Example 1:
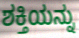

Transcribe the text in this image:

ಶಕ್ತಿಯನ್ನು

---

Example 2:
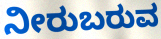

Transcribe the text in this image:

ನೀರುಬರುವ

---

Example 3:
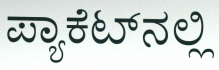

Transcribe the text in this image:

ಪ್ಯಾಕೆಟ್‍ನಲ್ಲಿ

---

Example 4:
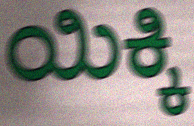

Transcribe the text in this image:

ಯಿಕ್ಕಿ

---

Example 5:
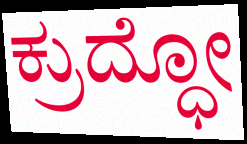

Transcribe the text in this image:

ಕ್ರುದ್ಧೋ